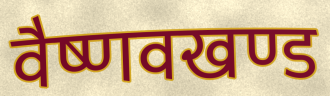
वैष्णवखण्ड